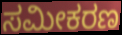
ಸಮೀಕರಣ